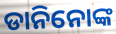
ଡାନିନୋଙ୍କ